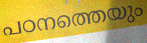
പഠനത്തെയും